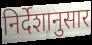
निर्देशानुसार